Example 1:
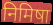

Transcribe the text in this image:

निमिषा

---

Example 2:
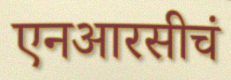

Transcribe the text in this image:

एनआरसीचं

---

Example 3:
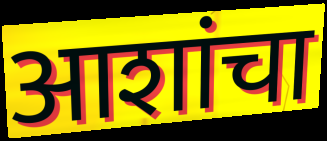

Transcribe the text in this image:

आशांचा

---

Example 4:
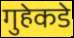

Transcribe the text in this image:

गुहेकडे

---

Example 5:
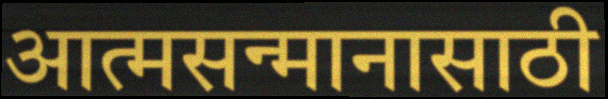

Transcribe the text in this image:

आत्मसन्मानासाठी